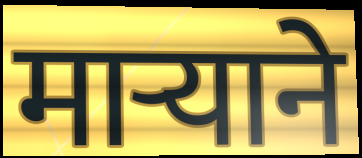
मार्‍याने